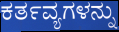
ಕರ್ತವ್ಯಗಳನ್ನು